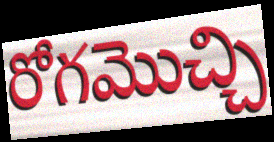
రోగమొచ్చి